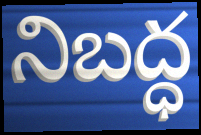
నిబద్ధ